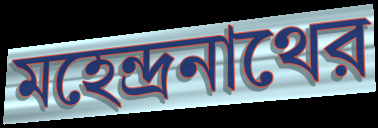
মহেন্দ্রনাথের